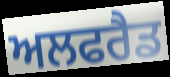
ਅਲਫਰੈਡ